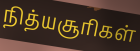
நித்யசூரிகள்